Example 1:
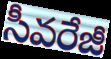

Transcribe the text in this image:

సీవరేజీ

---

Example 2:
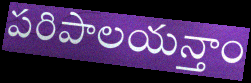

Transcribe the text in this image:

పరిపాలయన్తాం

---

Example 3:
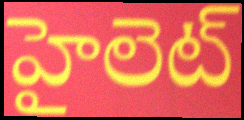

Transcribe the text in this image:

హైలెట్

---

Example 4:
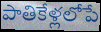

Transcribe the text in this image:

పాతికేళ్లలోపే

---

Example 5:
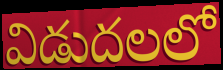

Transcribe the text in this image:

విడుదలలో